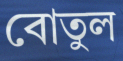
বোতুল